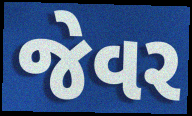
જેવર